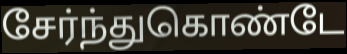
சேர்ந்துகொண்டே